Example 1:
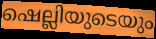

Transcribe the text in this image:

ഷെല്ലിയുടെയും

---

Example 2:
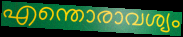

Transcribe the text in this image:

എന്തൊരാവശ്യം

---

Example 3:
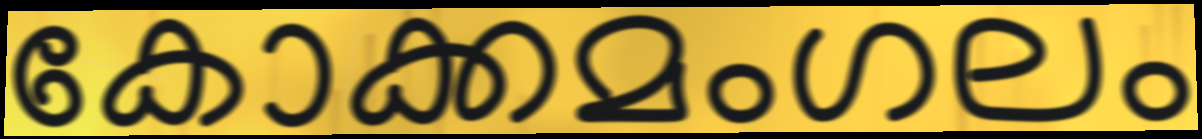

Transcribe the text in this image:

കോക്കമംഗലം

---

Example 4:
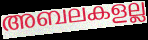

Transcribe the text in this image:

അബലകളല്ല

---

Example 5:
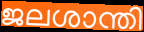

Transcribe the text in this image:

ജലശാന്തി